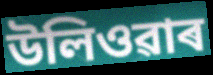
উলিওৱাৰ